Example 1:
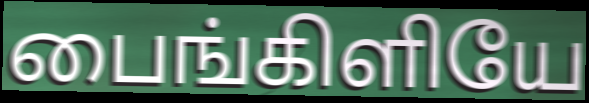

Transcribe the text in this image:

பைங்கிளியே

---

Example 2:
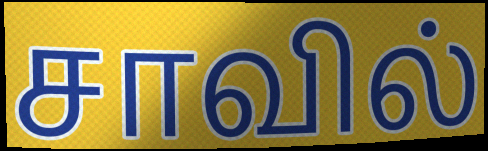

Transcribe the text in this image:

சாவில்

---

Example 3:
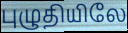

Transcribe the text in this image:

புழுதியிலே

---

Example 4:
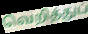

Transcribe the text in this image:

வெறித்துப்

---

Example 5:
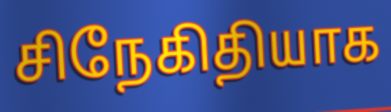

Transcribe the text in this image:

சிநேகிதியாக